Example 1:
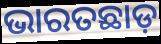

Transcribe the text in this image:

ଭାରତଛାଡ଼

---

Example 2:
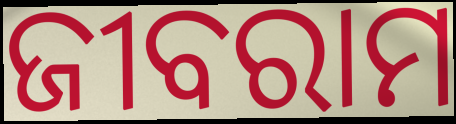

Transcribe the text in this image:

ଜୀବରାମ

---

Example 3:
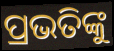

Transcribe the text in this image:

ପ୍ରଭତିଙ୍କୁ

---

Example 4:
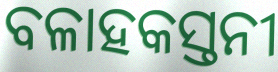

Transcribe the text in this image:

ବଳାହକସ୍ତନୀ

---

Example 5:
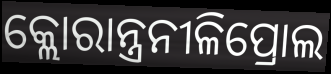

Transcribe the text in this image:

କ୍ଲୋରାନ୍ତ୍ରନୀଳିପ୍ରୋଲ